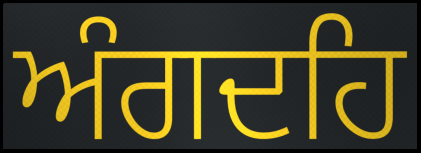
ਅੰਗਦਹਿ